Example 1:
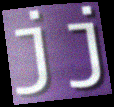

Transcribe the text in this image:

jj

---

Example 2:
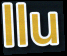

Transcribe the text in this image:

llu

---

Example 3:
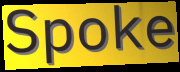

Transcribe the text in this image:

Spoke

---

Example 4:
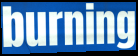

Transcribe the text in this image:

burning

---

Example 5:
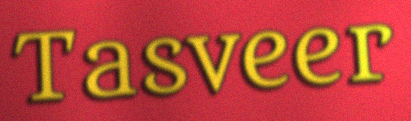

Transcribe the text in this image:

Tasveer